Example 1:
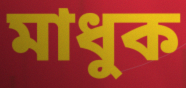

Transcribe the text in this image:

মাধুক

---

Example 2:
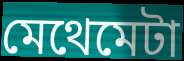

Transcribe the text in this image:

মেথেমেটা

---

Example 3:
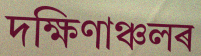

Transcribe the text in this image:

দক্ষিণাঞ্চলৰ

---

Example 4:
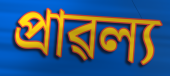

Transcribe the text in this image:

প্ৰাৱল্য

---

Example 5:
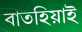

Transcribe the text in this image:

বাতহিয়াই